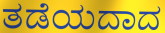
ತಡೆಯದಾದ